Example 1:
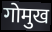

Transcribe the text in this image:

गोमुख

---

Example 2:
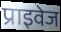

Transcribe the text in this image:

प्राइवेज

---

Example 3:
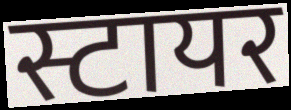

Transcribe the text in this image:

स्टायर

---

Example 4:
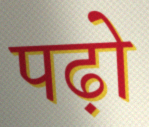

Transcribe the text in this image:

पढ़ो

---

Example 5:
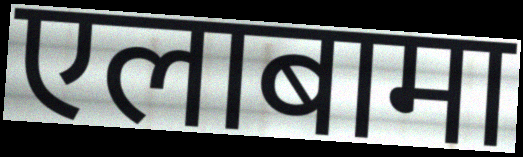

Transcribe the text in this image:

एलाबामा